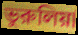
ভুরুলিয়া